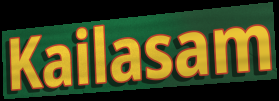
Kailasam